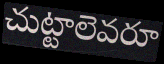
చుట్టాలెవరూ